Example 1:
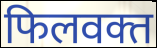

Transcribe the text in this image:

फिलवक्‍त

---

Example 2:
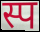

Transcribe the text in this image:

स्प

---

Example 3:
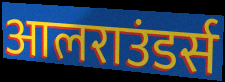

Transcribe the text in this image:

आलराउंडर्स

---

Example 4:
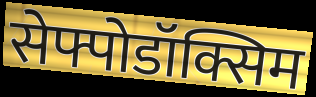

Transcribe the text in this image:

सेफ्पोडॉक्सिम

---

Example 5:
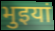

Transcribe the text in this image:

भुइयां